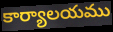
కార్యాలయము